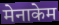
मेनाकेम